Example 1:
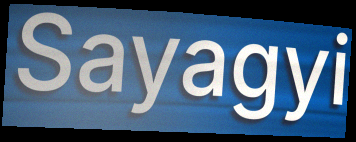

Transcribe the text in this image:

Sayagyi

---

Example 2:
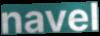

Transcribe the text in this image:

navel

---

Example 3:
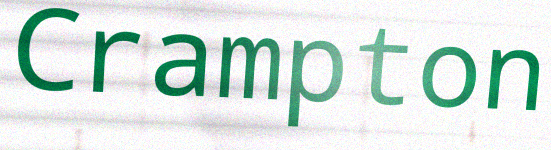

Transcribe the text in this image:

Crampton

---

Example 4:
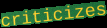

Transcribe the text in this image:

criticizes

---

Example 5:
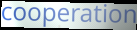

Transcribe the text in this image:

cooperation